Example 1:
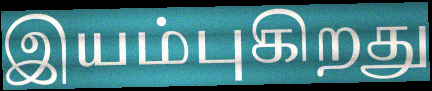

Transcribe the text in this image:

இயம்புகிறது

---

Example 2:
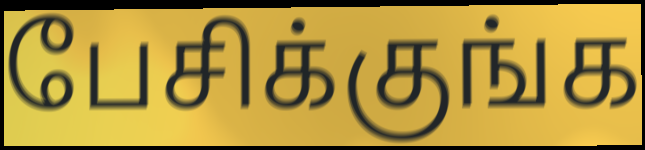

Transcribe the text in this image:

பேசிக்குங்க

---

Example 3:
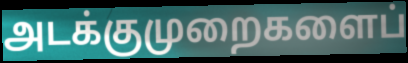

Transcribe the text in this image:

அடக்குமுறைகளைப்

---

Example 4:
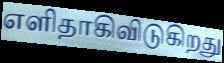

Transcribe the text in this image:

எளிதாகிவிடுகிறது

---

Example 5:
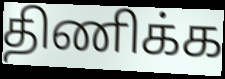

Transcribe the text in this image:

திணிக்க